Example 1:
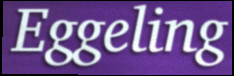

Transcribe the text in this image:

Eggeling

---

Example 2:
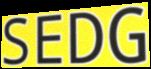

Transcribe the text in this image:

SEDG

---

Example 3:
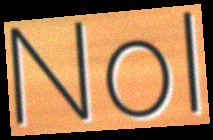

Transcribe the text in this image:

Nol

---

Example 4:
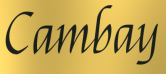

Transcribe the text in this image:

Cambay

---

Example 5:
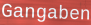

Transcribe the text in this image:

Gangaben